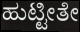
ಹುಟ್ಟೀತೇ